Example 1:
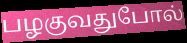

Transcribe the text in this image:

பழகுவதுபோல்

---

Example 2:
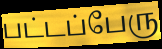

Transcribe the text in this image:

பட்டப்பேரு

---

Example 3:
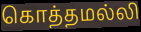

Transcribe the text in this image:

கொத்தமல்லி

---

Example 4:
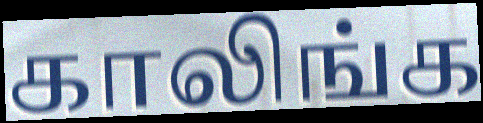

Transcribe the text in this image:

காலிங்க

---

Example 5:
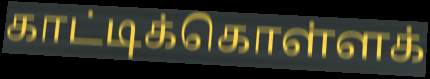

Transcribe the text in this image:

காட்டிக்கொள்ளக்